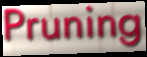
Pruning